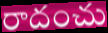
రాదంచు